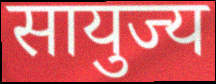
सायुज्य